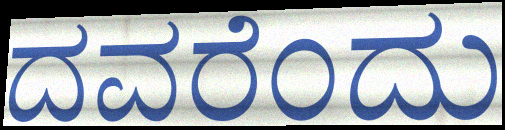
ದವರೆಂದು